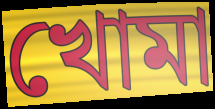
খোমা